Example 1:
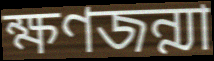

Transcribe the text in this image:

ক্ষণজন্মা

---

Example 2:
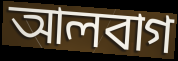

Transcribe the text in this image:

আলবাগ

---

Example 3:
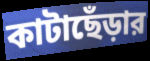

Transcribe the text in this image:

কাটাছেঁড়ার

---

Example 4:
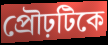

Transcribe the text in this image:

প্রৌঢ়টিকে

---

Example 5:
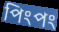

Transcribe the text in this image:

পিংপং